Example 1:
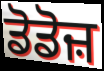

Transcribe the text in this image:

ਡੋਡੋਜ਼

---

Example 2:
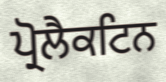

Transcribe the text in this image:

ਪ੍ਰੋਲੈਕਟਿਨ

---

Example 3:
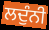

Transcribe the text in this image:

ਲਦੁੰਨੀ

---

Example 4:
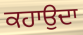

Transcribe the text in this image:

ਕਹਾਉਦਾ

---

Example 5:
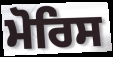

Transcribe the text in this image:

ਮੋਰਿਸ